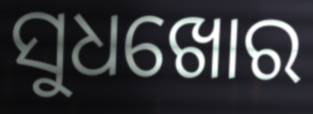
ସୁଧଖୋର